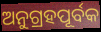
ଅନୁଗ୍ରହପୂର୍ବକ